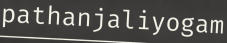
pathanjaliyogam